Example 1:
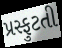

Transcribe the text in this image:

પ્રસ્ફુટતી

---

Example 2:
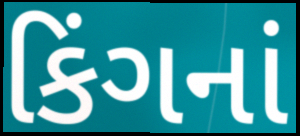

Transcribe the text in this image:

કિંગનાં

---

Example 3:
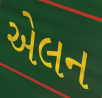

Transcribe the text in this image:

એલન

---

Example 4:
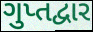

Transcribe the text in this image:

ગુપ્તદ્વાર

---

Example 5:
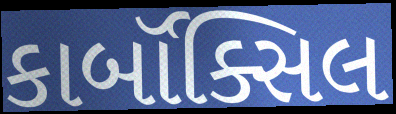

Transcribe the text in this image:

કાર્બૉક્સિલ